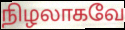
நிழலாகவே